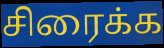
சிரைக்க